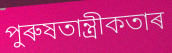
পুৰুষতান্ত্ৰীকতাৰ